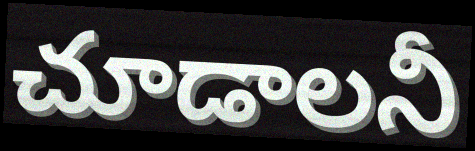
చూడాలనీ